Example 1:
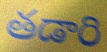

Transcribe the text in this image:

తడారి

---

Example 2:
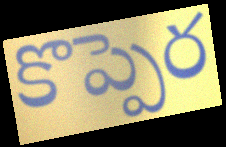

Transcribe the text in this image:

కొప్పెర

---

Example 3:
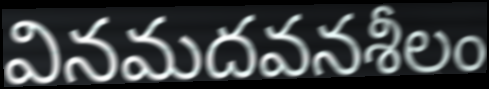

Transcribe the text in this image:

వినమదవనశీలం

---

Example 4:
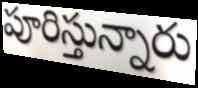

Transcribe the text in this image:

పూరిస్తున్నారు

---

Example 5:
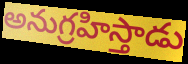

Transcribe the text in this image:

అనుగ్రహిస్తాడు